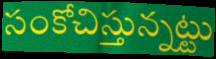
సంకోచిస్తున్నట్టు